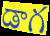
డాగ